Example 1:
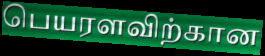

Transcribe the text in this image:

பெயரளவிற்கான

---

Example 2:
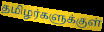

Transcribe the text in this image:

தமிழர்களுக்குள்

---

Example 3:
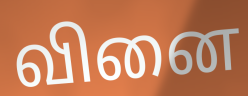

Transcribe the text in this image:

வினை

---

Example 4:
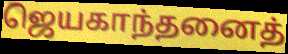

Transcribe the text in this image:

ஜெயகாந்தனைத்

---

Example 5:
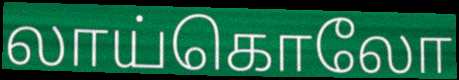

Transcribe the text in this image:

லாய்கொலோ